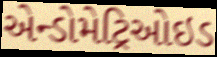
એન્ડોમેટ્રિઓઇડ